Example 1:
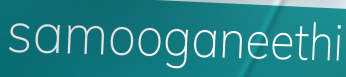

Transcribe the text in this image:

samooganeethi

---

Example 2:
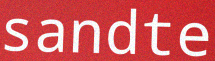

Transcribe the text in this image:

sandte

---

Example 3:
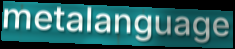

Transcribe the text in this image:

metalanguage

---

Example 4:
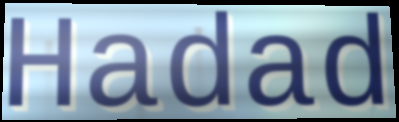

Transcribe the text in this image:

Hadad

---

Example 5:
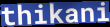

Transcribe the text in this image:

thikani